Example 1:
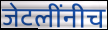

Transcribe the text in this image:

जेटलींनीच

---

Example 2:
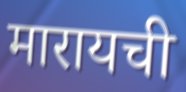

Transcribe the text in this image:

मारायची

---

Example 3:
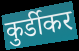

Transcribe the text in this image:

कुर्डीकर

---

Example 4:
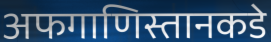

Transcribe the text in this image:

अफगाणिस्तानकडे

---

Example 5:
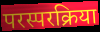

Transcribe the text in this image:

परस्परक्रिया